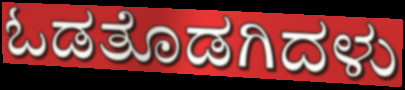
ಓಡತೊಡಗಿದಳು